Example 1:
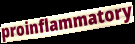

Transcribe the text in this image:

proinflammatory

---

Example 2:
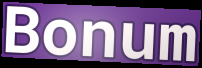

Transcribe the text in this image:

Bonum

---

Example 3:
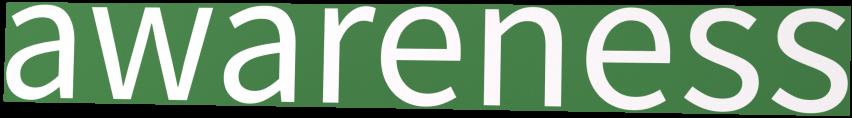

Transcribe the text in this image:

awareness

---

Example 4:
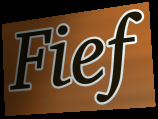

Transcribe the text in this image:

Fief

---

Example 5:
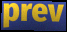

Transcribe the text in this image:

prev